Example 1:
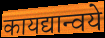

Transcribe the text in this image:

कायद्यान्वये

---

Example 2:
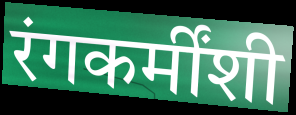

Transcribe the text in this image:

रंगकर्मींशी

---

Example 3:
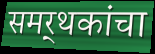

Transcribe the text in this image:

समर्थकांचा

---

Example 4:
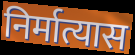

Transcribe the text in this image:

निर्मात्यास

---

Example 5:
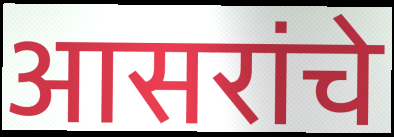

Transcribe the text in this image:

आसरांचे